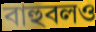
বাহুবলও